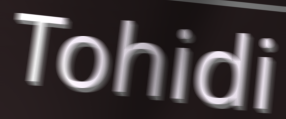
Tohidi